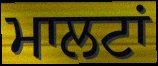
ਮਾਲਟਾਂ